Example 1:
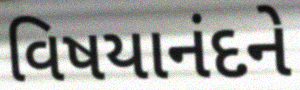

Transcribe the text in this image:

વિષયાનંદને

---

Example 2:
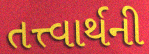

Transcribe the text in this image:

તત્ત્વાર્થની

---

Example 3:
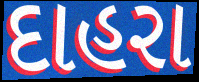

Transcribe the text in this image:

દાહરા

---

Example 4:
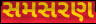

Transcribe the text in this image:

સમસરણ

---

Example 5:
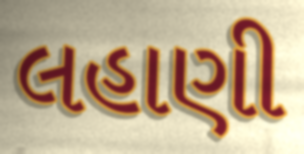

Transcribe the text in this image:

લહાણી